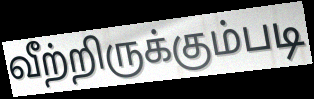
வீற்றிருக்கும்படி